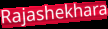
Rajashekhara